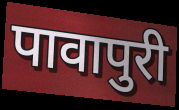
पावापुरी